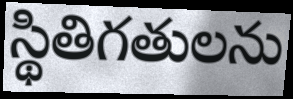
స్థితిగతులను